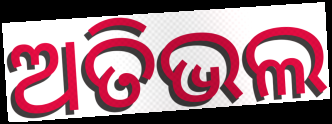
ଅତିଭଲ